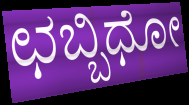
ಛಬ್ಬಿಧೋ